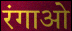
रंगाओ